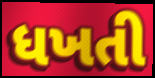
ધખતી